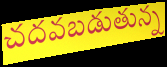
చదవబడుతున్న